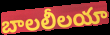
బాలలీలయా